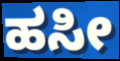
ಹಸೀ